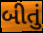
બીતું